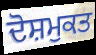
ਦੋਸ਼ਮੁਕਤ